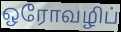
ஒரோவழிப்